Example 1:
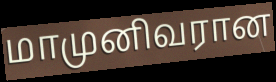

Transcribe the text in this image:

மாமுனிவரான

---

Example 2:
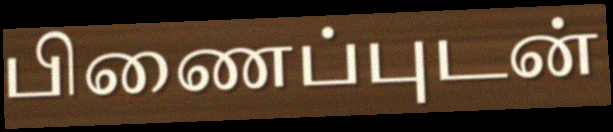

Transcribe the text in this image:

பிணைப்புடன்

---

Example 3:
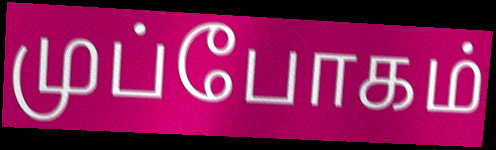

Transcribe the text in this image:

முப்போகம்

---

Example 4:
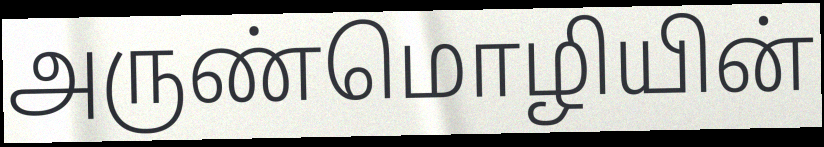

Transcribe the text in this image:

அருண்மொழியின்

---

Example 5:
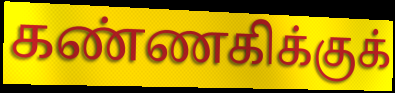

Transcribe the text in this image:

கண்ணகிக்குக்